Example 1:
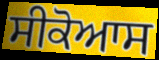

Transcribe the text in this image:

ਸੀਕੋਆਸ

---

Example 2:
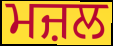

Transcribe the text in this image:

ਮਜ਼ਲ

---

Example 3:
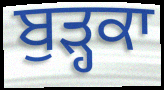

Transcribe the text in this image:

ਬੁੜ੍ਹਕਾ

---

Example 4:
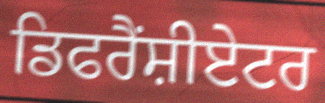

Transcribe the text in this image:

ਡਿਫਰੈਂਸ਼ੀਏਟਰ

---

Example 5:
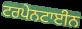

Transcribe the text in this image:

ਟਰਪੇਨਟਾਈਨ